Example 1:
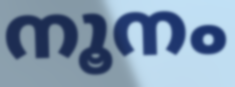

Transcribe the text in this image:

നൂനം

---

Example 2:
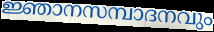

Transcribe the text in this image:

ജ്ഞാനസമ്പാദനവും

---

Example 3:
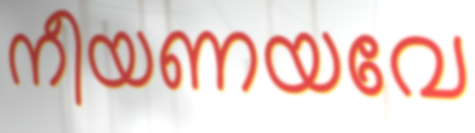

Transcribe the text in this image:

നീയണയവേ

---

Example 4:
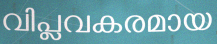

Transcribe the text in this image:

വിപ്ലവകരമായ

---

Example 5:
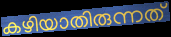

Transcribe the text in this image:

കഴിയാതിരുന്നത്